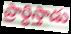
ప్రార్ధిస్తాడు